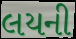
લયની